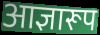
आज्ञारूप